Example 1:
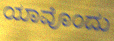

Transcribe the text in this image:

ಯಾವೊಂದು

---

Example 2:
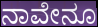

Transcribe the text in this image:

ನಾವೇನೂ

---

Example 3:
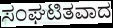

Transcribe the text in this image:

ಸಂಘಟಿತವಾದ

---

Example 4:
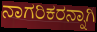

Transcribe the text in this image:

ನಾಗರಿಕರನ್ನಾಗಿ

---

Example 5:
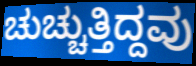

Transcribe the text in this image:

ಚುಚ್ಚುತ್ತಿದ್ದವು